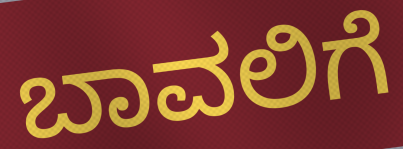
ಬಾವಲಿಗೆ